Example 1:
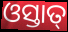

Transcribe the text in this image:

ଓସ୍ତାତ୍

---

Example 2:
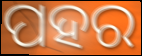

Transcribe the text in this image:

ପହର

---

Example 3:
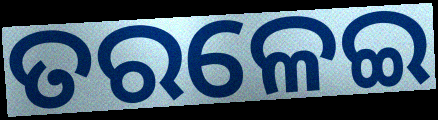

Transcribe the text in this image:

ତରଳେଇ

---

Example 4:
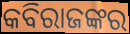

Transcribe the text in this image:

କବିରାଜଙ୍କର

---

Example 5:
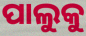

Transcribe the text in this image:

ପାଲୁକୁ